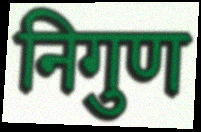
निगुण